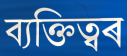
ব্যক্তিত্বৰ